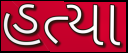
હત્યા